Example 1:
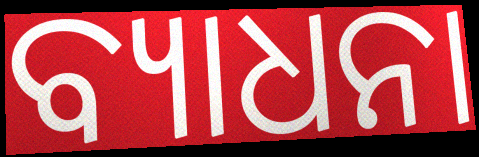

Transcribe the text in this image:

ବ୍ୟାଧନା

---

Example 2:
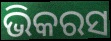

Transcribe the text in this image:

ଭିକରସ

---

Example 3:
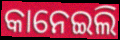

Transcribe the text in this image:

କାନେଇଲି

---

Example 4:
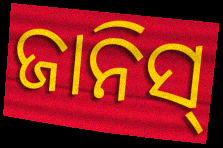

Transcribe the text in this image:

ଜାନିସ୍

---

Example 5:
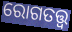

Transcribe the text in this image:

ରୋଗତତ୍ତ୍ୱ